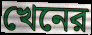
খেনের